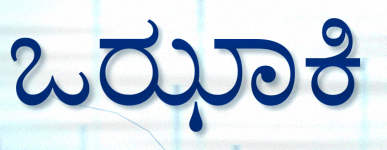
ಒಝಾಕಿ